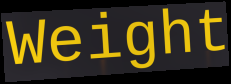
Weight